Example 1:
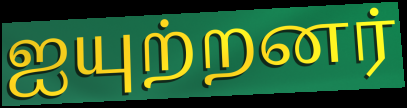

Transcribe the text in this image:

ஐயுற்றனர்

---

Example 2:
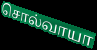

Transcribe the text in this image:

சொல்வாயா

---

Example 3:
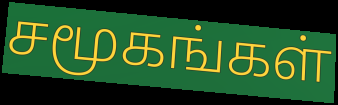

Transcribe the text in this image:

சமூகங்கள்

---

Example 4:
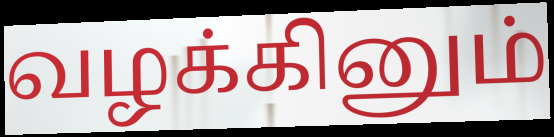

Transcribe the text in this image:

வழக்கினும்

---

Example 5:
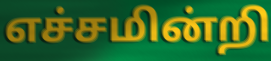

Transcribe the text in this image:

எச்சமின்றி